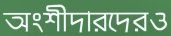
অংশীদারদেরও